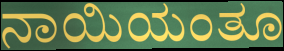
ನಾಯಿಯಂತೂ